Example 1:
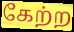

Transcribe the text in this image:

கேற்ற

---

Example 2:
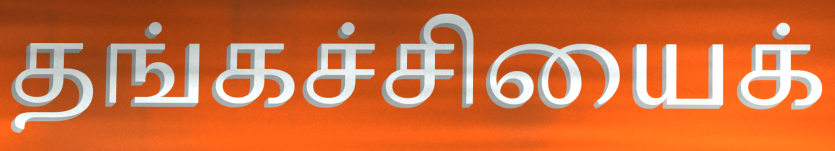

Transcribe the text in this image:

தங்கச்சியைக்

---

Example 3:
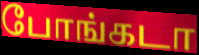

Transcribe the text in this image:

போங்கடா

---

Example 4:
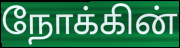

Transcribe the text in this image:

நோக்கின்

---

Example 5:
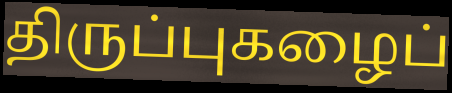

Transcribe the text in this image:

திருப்புகழைப்